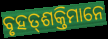
ବୃହତ୍‌ଶକ୍ତିମାନେ